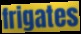
frigates